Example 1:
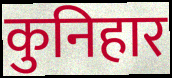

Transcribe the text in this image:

कुनिहार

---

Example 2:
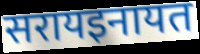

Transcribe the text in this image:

सरायइनायत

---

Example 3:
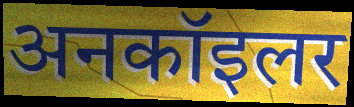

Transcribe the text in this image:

अनकॉइलर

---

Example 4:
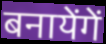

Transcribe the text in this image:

बनायेंगें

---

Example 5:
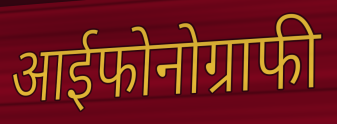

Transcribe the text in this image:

आईफोनोग्राफी